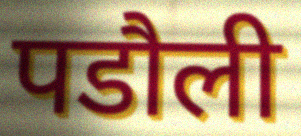
पडौली